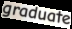
graduate